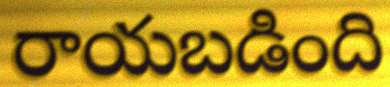
రాయబడింది